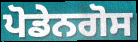
ਪੋਡੇਨਗੋਸ